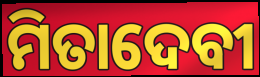
ମିତାଦେବୀ